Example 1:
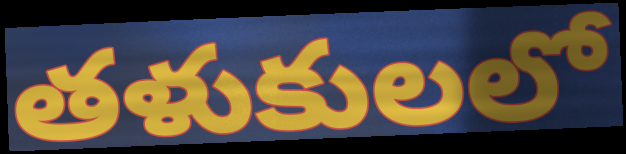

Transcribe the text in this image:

తళుకులలో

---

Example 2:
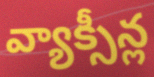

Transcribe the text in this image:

వ్యాక్సీన్ల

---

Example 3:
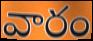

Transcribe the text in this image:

వారం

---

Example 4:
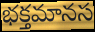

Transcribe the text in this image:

భక్తమానస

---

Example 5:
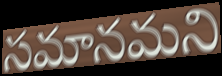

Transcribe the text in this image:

సమానమని